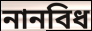
নানবিধ